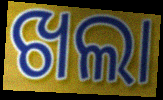
ଖଲା